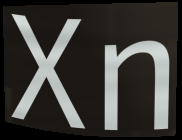
Xn